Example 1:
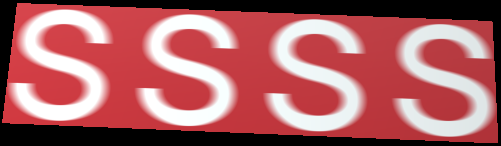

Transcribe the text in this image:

ssss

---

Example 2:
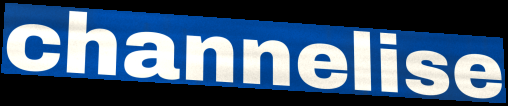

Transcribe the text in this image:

channelise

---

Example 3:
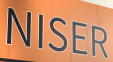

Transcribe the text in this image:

NISER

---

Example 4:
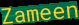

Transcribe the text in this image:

Zameen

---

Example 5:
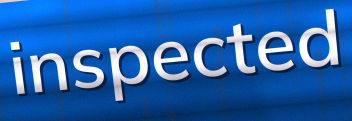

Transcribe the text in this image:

inspected